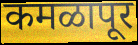
कमळापूर